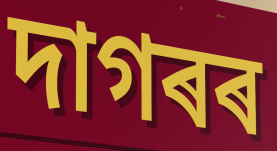
দাগৰৰ